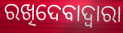
ରଖିଦେବାଦ୍ୱାରା